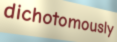
dichotomously